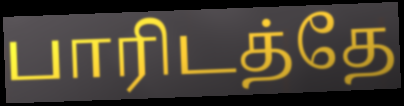
பாரிடத்தே